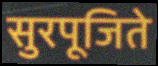
सुरपूजिते